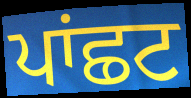
ਪਾਂਛਟ